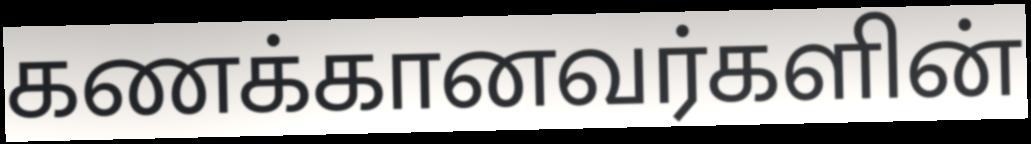
கணக்கானவர்களின்